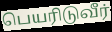
பெயரிடுவீர்